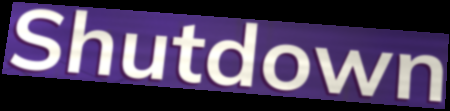
Shutdown